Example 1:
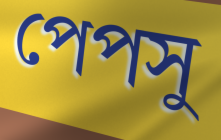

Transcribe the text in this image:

পেপসু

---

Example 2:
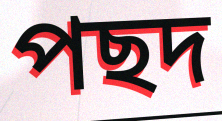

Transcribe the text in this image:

পছদ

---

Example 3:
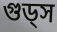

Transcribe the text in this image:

গুড্স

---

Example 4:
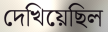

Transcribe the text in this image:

দেখিয়েছিল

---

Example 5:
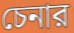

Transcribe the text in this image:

চেনার